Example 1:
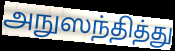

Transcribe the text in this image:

அநுஸந்தித்து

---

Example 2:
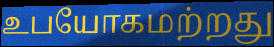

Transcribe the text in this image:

உபயோகமற்றது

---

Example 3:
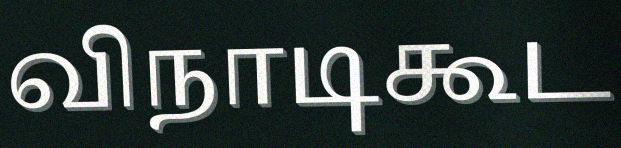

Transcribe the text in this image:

விநாடிகூட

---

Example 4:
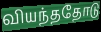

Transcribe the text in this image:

வியந்ததோடு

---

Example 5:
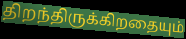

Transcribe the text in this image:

திறந்திருக்கிறதையும்